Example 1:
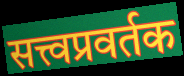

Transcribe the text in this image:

सत्त्वप्रवर्तक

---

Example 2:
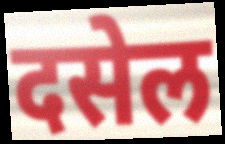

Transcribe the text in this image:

दसेल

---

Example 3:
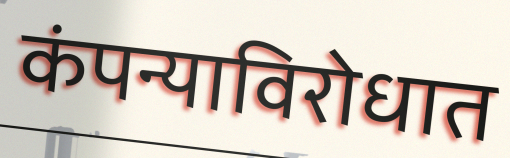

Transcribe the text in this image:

कंपन्याविरोधात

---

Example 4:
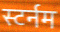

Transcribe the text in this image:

स्टर्नम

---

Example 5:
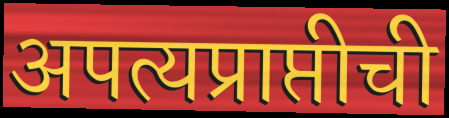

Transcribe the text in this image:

अपत्यप्राप्तीची